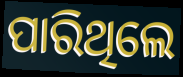
ପାରିଥିଲେ